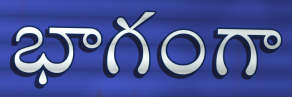
భాగంగా